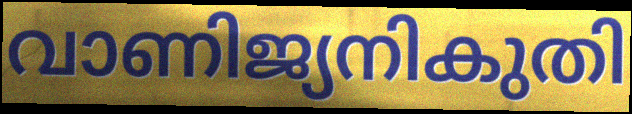
വാണിജ്യനികുതി